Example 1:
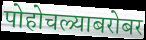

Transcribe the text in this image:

पोहोचल्याबरोबर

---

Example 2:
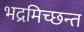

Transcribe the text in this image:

भद्रमिच्छन्त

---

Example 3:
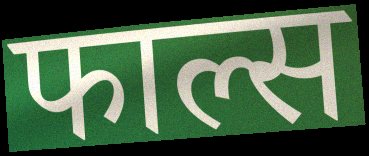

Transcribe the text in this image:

फाल्स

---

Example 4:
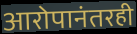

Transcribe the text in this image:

आरोपानंतरही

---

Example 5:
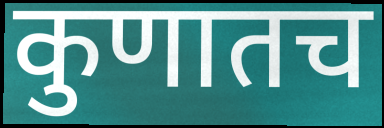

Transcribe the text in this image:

कुणातच